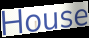
House